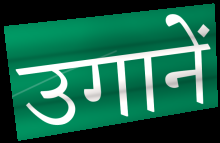
उगानें